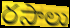
రసాలు